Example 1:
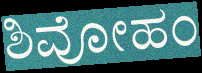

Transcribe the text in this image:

ಶಿವೋಹಂ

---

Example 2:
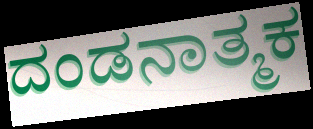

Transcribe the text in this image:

ದಂಡನಾತ್ಮಕ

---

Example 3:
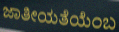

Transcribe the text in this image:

ಜಾತೀಯತೆಯೆಂಬ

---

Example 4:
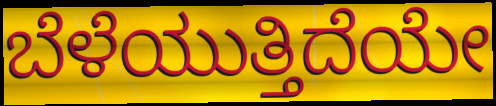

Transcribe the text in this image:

ಬೆಳೆಯುತ್ತಿದೆಯೇ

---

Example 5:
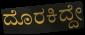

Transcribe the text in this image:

ದೊರಕಿದ್ದೇ